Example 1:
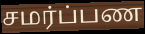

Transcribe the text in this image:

சமர்ப்பண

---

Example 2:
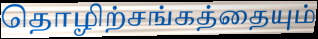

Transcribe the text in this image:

தொழிற்சங்கத்தையும்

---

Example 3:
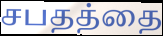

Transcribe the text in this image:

சபதத்தை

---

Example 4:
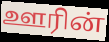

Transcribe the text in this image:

ஊரின்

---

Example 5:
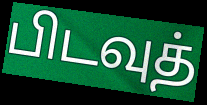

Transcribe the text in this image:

பிடவுத்